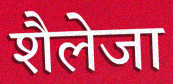
शैलेजा